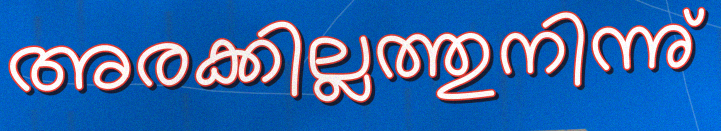
അരക്കില്ലത്തുനിന്നു്